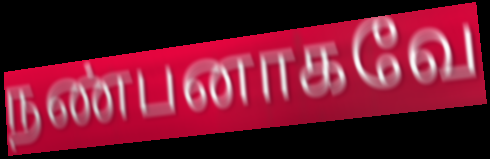
நண்பனாகவே